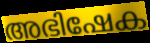
അഭിഷേക